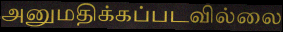
அனுமதிக்கப்படவில்லை